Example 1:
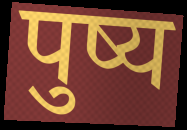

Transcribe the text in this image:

पुष्य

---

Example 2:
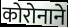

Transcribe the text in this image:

कोरोनाने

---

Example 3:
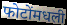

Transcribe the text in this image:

फोटोंमधली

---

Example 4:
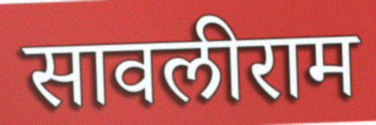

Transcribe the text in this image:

सावलीराम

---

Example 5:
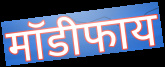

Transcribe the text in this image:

मॉडीफाय